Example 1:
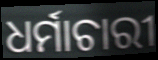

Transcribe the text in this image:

ଧର୍ମାଚାରୀ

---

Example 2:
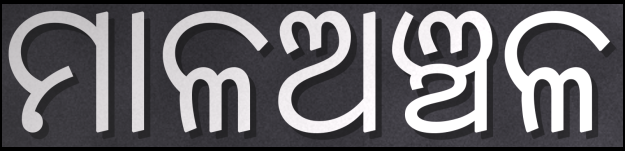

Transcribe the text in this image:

ମାଳଅଞ୍ଚଳ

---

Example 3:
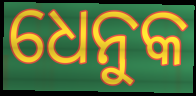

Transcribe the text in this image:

ଧେନୁକ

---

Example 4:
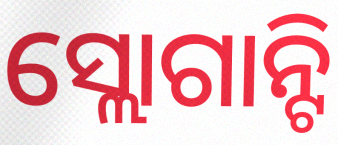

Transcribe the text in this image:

ସ୍ଲୋଗାନ୍ଟି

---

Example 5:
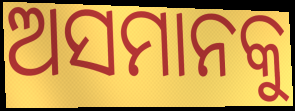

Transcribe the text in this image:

ଅସମାନକୁ